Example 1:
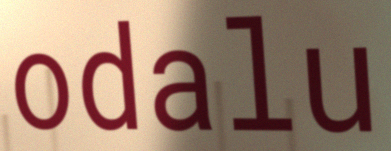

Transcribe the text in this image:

odalu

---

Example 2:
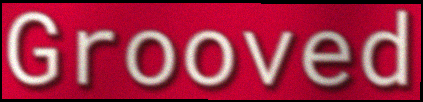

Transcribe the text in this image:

Grooved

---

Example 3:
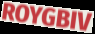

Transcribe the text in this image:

ROYGBIV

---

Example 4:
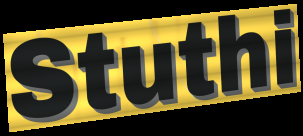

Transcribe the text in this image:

Stuthi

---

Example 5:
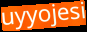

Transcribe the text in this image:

uyyojesi